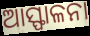
ଆସ୍ଫାଳନା